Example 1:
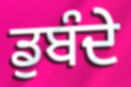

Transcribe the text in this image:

ਡੁਬੰਦੇ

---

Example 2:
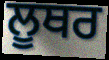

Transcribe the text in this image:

ਲੂਥਰ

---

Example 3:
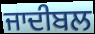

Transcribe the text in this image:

ਜਾਦੀਬਲ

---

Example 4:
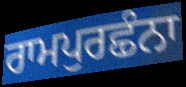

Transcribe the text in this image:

ਰਾਮਪੁਰਛੰਨਾ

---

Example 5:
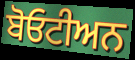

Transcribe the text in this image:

ਬੋਓਟੀਅਨ